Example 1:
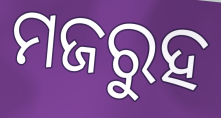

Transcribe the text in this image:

ମଜରୁହ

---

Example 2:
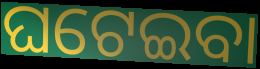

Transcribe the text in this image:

ଘଟେଇବା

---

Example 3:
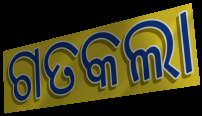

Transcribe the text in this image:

ଗତକଲା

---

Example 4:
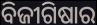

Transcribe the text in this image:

ବିଜୀଗିଷାର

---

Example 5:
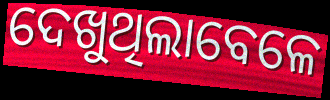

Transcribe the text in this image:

ଦେଖୁଥିଲାବେଳେ